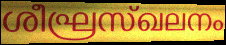
ശീഘ്രസ്ഖലനം